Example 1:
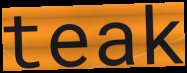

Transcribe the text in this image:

teak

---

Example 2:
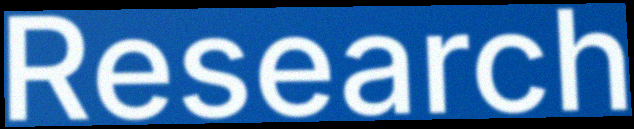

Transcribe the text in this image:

Research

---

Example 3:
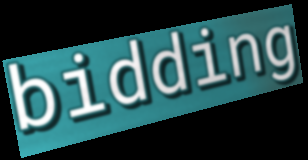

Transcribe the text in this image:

bidding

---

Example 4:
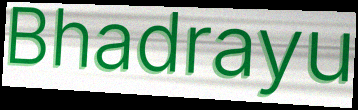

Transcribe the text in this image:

Bhadrayu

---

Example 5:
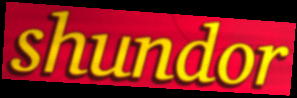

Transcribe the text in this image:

shundor